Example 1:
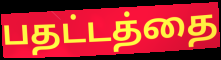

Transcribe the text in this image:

பதட்டத்தை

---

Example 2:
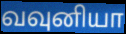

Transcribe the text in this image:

வவுனியா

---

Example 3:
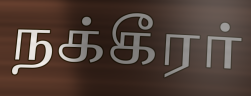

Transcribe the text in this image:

நக்கீரர்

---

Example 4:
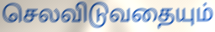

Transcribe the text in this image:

செலவிடுவதையும்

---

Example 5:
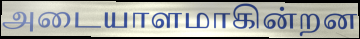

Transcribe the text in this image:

அடையாளமாகின்றன